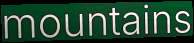
mountains